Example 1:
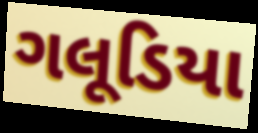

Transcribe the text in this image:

ગલૂડિયા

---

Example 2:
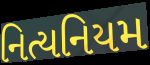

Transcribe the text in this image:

નિત્યનિયમ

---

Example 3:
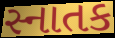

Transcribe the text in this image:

સ્નાતક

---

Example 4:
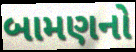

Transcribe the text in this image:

બામણનો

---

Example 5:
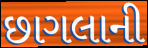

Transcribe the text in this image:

છાગલાની